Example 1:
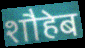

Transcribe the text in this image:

शौहेब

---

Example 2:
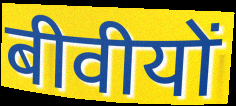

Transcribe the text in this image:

बीवीयों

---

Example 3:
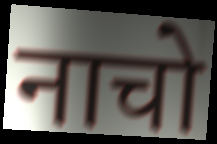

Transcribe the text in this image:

नाचो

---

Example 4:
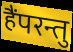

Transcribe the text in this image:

हैंपरन्तु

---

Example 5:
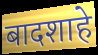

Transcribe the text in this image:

बादशाहे